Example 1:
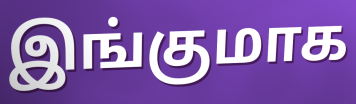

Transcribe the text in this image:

இங்குமாக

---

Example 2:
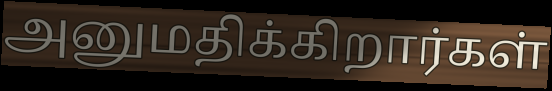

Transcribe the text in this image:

அனுமதிக்கிறார்கள்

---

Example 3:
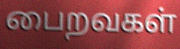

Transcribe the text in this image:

பைறவகள்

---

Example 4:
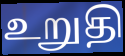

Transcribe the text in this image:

உறுதி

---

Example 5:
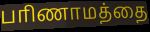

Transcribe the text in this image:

பரிணாமத்தை